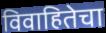
विवाहितेचा